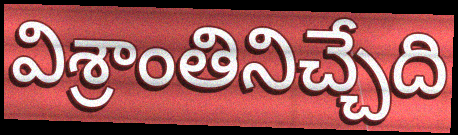
విశ్రాంతినిచ్చేది